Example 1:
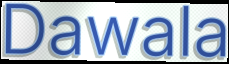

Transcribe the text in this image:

Dawala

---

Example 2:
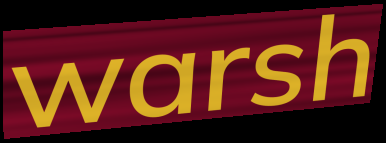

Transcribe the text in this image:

warsh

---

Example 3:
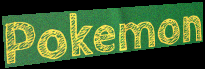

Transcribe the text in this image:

Pokemon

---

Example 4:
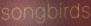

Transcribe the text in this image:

songbirds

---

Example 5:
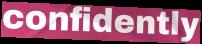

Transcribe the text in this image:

confidently